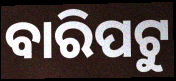
ବାରିପଟୁ